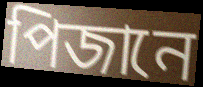
পিজানে